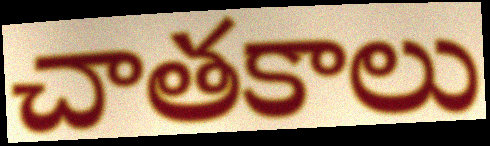
చాతకాలు